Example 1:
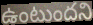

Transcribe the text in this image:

ఉంటుందని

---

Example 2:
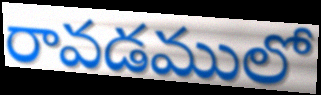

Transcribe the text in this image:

రావడములో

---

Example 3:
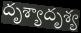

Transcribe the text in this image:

దృశ్యాదృశ్య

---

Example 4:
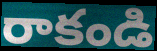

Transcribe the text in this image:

రాకండి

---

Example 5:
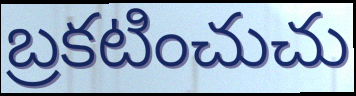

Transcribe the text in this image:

బ్రకటించుచు